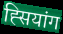
ह्सियांग